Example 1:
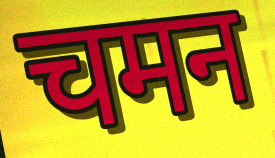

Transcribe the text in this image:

चमन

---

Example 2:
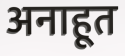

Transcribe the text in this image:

अनाहूत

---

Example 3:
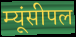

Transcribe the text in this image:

म्यूंसीपल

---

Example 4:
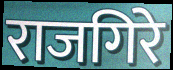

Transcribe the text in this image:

राजगिरे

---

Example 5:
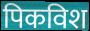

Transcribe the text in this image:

पिकविश